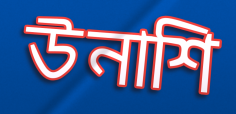
উনাশি